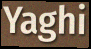
Yaghi